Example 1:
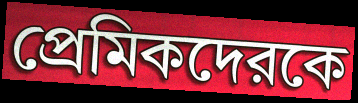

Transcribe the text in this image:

প্রেমিকদেরকে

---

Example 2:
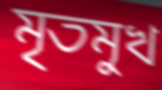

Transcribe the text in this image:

মৃতমুখ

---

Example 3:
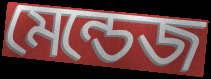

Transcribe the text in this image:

মেন্ডেজ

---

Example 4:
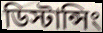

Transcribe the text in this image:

ডিস্টান্সিং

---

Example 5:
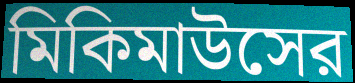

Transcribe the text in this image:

মিকিমাউসের